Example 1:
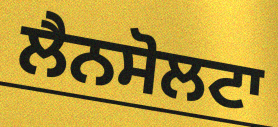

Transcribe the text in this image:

ਲੈਨਸੋਲਟਾ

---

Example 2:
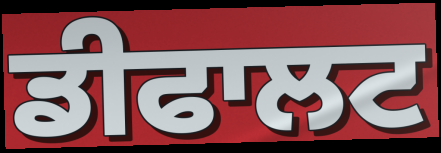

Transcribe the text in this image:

ਡੀਫਾਲਟ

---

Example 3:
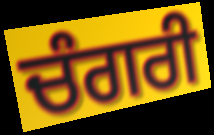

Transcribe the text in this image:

ਚੰਗਰੀ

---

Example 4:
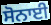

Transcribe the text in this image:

ਸੋਨਾਈ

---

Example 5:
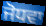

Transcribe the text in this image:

ਜੋਧਵਾ